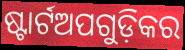
ଷ୍ଟାର୍ଟଅପଗୁଡ଼ିକର